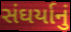
સંઘર્યાનું